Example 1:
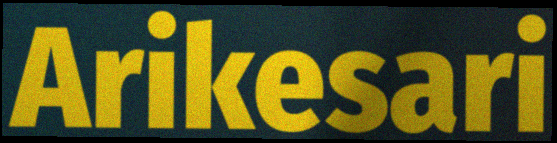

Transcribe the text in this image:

Arikesari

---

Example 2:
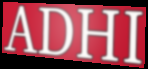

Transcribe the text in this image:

ADHI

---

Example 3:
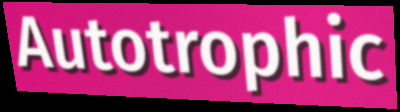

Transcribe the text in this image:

Autotrophic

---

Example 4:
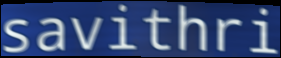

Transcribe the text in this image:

savithri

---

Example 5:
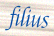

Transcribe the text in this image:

filius